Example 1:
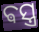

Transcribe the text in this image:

ଵସ୍ତ୍ର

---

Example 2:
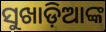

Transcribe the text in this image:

ସୁଖାଡ଼ିଆଙ୍କ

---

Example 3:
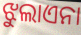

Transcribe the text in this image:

ଝୁଲାଏନା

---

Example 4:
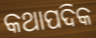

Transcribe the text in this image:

କଥାପଦିକ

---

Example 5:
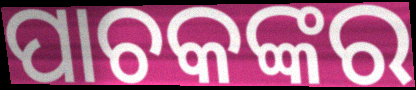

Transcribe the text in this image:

ପାଚକଙ୍କର